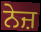
ਨੇਜ਼